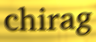
chirag